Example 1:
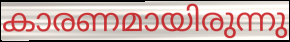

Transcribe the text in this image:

കാരണമായിരുന്നു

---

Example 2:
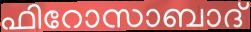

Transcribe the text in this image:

ഫിറോസാബാദ്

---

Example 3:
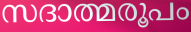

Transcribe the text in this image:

സദാത്മരൂപം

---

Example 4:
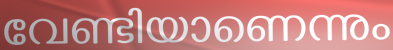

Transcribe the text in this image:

വേണ്ടിയാണെന്നും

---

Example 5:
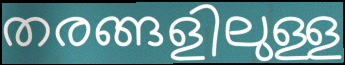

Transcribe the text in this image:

തരങ്ങളിലുള്ള